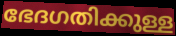
ഭേദഗതിക്കുള്ള